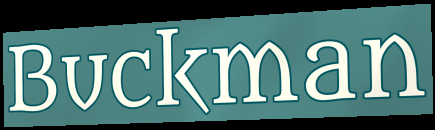
Buckman